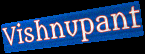
Vishnupant